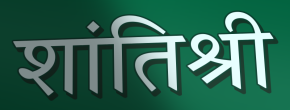
शांतिश्री